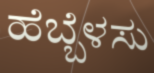
ಹೆಬ್ಬೆಳಸು